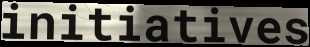
initiatives